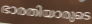
ഭാരതിയാരുടെ